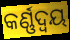
କର୍ଣ୍ଣଦ୍ୱୟ